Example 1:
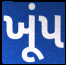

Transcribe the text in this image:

ખૂંપ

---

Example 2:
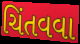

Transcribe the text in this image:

ચિંતવવા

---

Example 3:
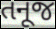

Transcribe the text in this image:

તનૂજ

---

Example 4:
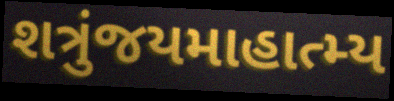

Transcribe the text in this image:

શત્રુંજયમાહાત્મ્ય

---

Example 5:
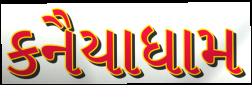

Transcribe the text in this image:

કનૈયાધામ